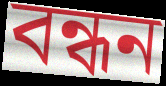
বন্ধন